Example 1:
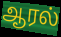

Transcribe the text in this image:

ஆரல்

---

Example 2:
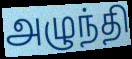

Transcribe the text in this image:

அழுந்தி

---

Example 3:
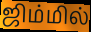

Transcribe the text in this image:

ஜிம்மில்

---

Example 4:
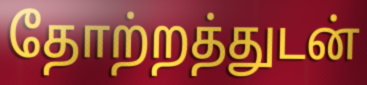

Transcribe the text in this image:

தோற்றத்துடன்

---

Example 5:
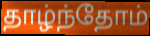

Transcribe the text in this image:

தாழ்ந்தோம்